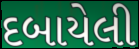
દબાયેલી